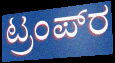
ಟ್ರಂಪ್‍ರ